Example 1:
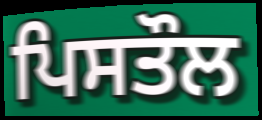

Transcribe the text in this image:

ਪਿਸਤੌਲ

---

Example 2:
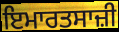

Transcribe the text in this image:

ਇਮਾਰਤਸਾਜ਼ੀ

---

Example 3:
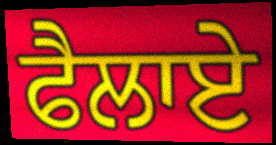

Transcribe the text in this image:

ਫੈਲਾਏ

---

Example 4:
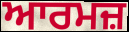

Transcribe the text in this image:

ਆਰਮਜ਼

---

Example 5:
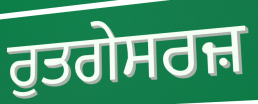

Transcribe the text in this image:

ਰੁਤਗੇਸਰਜ਼